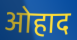
ओहाद